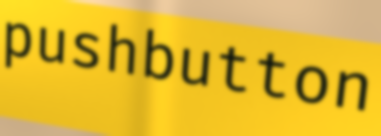
pushbutton